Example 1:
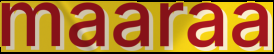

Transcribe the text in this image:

maaraa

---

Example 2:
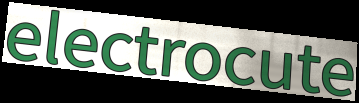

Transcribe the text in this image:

electrocute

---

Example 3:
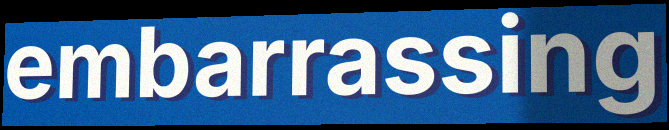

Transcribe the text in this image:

embarrassing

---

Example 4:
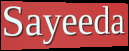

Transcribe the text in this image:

Sayeeda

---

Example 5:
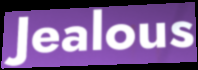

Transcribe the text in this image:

Jealous